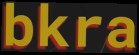
bkra